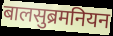
बालसुब्रमनियन